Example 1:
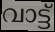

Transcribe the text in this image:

വാട്ട്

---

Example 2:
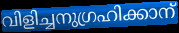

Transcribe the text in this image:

വിളിച്ചനുഗ്രഹിക്കാന്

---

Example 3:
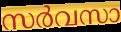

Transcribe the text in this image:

സർവസാ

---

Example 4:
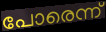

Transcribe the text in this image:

പോരെന്ന്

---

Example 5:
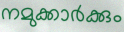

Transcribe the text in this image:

നമുക്കാർക്കും